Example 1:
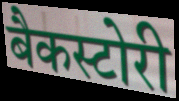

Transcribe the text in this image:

बैकस्टोरी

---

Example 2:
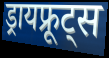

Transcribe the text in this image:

ड्रायफ्रूट्स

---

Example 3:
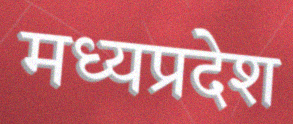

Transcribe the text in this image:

मध्‍यप्रदेश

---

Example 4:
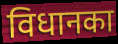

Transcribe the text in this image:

विधानका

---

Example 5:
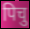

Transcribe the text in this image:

पिचु